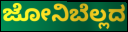
ಜೋನಿಬೆಲ್ಲದ